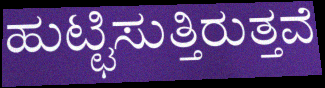
ಹುಟ್ಟಿಸುತ್ತಿರುತ್ತವೆ